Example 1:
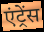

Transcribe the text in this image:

एंट्रेंस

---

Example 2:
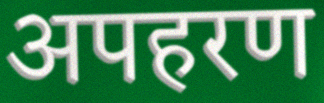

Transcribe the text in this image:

अपहरण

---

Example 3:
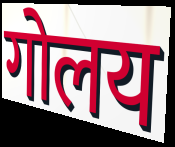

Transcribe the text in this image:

गोलय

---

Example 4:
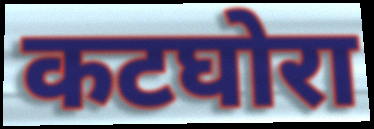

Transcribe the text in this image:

कटघोरा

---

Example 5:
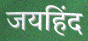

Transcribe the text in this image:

जयहिंद